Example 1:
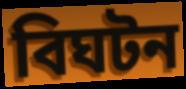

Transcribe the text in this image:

বিঘটন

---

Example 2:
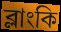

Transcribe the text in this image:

ব্লাংকি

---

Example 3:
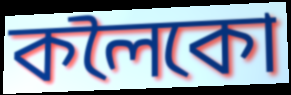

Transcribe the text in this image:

কলৈকো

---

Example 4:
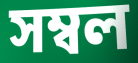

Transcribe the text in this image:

সম্বল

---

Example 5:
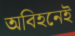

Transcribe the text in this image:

অবিহনেই